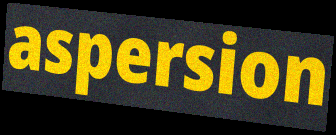
aspersion